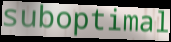
suboptimal